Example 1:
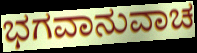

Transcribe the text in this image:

ಭಗವಾನುವಾಚ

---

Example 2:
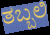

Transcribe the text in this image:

ತಬ್ಬಲಿ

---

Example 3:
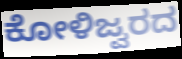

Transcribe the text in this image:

ಕೋಳಿಜ್ವರದ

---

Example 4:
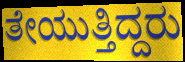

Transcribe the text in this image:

ತೇಯುತ್ತಿದ್ದರು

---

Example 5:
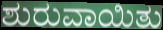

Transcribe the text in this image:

ಶುರುವಾಯಿತು